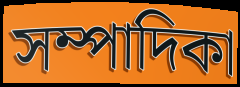
সম্পাদিকা